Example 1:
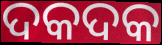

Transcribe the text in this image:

ଦକଦକ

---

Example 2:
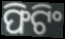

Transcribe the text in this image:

ଫିଟିଂ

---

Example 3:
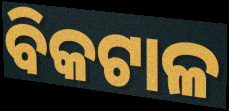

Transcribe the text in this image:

ବିକଟାଳ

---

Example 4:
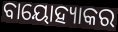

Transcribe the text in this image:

ବାୟୋହ୍ୟାକର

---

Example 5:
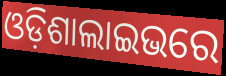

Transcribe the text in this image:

ଓଡ଼ିଶାଲାଇଭରେ